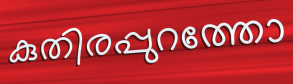
കുതിരപ്പുറത്തോ